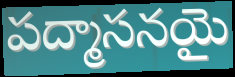
పద్మాసనయై